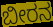
ಬೀರನ